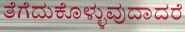
ತೆಗೆದುಕೊಳ್ಳುವುದಾದರೆ